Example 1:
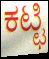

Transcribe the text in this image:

ಕಟ್ಟಿ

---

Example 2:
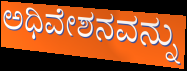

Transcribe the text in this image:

ಅಧಿವೇಶನವನ್ನು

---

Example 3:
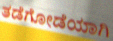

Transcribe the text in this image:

ತಡೆಗೋಡೆಯಾಗಿ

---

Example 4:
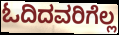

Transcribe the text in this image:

ಓದಿದವರಿಗೆಲ್ಲ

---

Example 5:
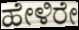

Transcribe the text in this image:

ಹೇಳಿರೇ